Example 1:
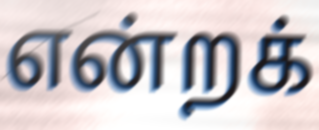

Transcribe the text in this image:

என்றக்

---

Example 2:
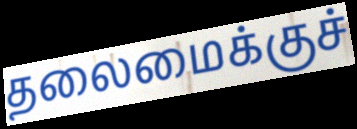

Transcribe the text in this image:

தலைமைக்குச்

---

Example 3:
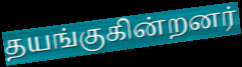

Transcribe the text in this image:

தயங்குகின்றனர்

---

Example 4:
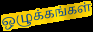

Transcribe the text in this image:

ஒழுக்கங்கள்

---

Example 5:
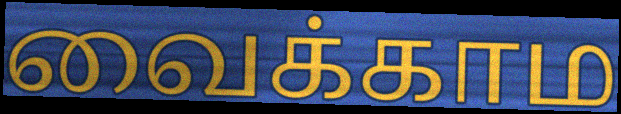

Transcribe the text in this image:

வைக்காம